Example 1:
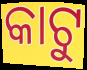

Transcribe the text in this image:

କାଟୁ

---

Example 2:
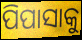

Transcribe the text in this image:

ପିପାସାକୁ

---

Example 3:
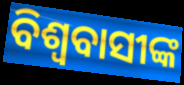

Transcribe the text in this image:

ବିଶ୍ଵବାସୀଙ୍କ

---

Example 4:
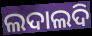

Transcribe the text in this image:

ଲଦାଲଦି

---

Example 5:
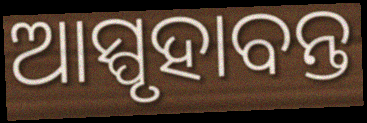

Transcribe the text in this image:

ଆସ୍ପୃହାବନ୍ତ